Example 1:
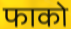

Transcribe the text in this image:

फाको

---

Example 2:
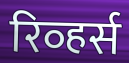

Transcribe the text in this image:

रिव्हर्स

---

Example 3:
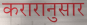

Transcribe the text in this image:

करारानुसार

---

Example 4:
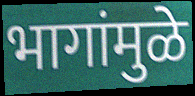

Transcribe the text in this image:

भागांमुळे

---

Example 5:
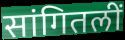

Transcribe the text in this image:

सांगितलीं